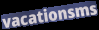
vacationsms